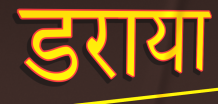
डराया